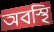
অবস্থি